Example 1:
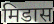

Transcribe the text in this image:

मिडास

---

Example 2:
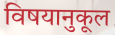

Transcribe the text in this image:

विषयानुकूल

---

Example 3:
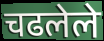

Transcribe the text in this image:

चढलेले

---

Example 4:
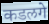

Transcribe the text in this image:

कडलगे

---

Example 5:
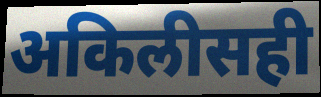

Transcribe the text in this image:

अकिलीसही